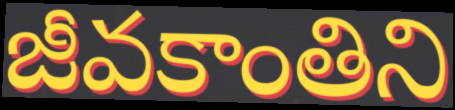
జీవకాంతిని